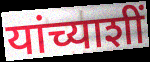
यांच्याशीं